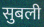
सुबली